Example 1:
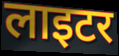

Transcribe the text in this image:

लाइटर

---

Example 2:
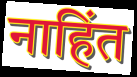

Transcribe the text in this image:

नाहिंत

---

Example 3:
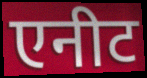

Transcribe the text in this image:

एनीट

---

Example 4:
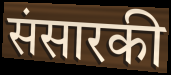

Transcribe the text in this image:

संसारकी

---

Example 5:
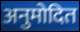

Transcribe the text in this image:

अनुमोदित